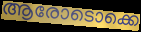
ആരോടൊക്കെ